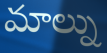
మాల్ను